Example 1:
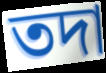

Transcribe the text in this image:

তদা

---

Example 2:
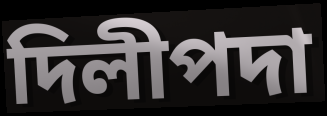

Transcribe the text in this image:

দিলীপদা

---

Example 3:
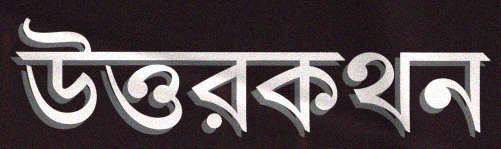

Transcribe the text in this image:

উত্তরকথন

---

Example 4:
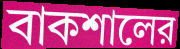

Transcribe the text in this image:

বাকশালের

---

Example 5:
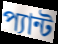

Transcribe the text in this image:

প্যান্ট